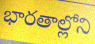
భారతాల్లోని